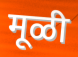
मूळी